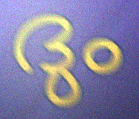
ദും